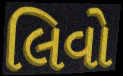
લિવો